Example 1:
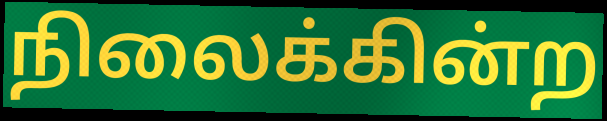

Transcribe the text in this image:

நிலைக்கின்ற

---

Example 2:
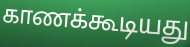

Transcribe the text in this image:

காணக்கூடியது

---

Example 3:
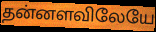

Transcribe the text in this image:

தன்னளவிலேயே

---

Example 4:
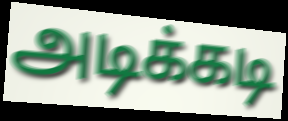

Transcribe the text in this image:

அடிக்கடி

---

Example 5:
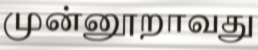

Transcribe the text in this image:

முன்னூறாவது